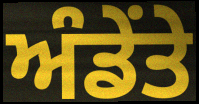
ਅੰਡੇਂਤੇ